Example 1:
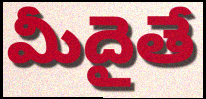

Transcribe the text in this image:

మీదైతే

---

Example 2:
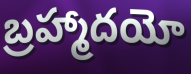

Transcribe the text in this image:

బ్రహ్మాదయో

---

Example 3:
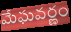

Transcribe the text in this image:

మేఘవర్ణం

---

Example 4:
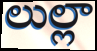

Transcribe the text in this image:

లుల్లా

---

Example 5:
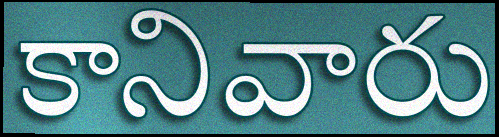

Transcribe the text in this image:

కానివారు